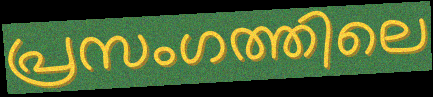
പ്രസംഗത്തിലെ